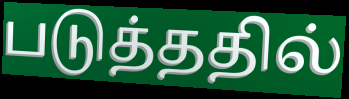
படுத்ததில்